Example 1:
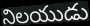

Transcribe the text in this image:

నిలయుడు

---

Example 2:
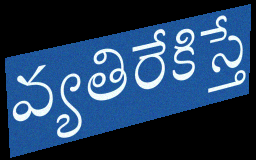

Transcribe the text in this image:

వ్యతిరేకిస్తే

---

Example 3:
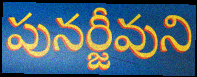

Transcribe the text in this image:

పునర్జీవుని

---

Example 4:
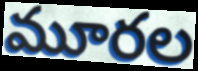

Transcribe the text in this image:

మూరల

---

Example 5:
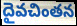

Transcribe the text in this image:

దైవచింతన